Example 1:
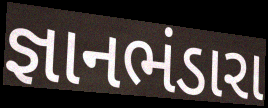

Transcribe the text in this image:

જ્ઞાનભંડારા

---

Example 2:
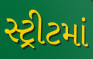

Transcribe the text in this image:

સ્ટ્રીટમાં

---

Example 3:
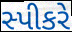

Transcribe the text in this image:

સ્પીકરે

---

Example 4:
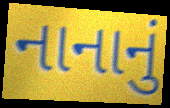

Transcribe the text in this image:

નાનાનું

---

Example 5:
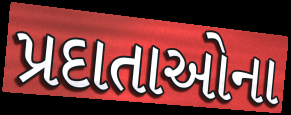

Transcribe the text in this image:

પ્રદાતાઓના